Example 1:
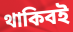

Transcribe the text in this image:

থাকিবই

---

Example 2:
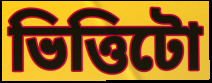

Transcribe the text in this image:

ভিত্তিটো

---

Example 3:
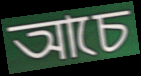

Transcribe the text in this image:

আচে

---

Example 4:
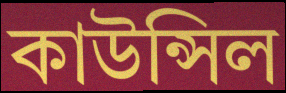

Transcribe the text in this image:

কাউন্সিল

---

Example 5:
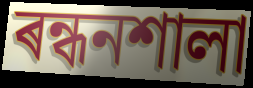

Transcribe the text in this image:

ৰন্ধনশালা